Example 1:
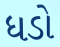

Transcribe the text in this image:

ધડો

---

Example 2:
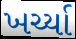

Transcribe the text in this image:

ખર્ચ્યા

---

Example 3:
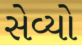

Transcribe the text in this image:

સેવ્યો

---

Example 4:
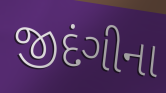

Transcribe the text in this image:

જીદંગીના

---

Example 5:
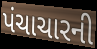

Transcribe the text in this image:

પંચાચારની